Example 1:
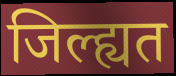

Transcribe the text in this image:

जिल्ह्यत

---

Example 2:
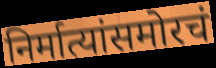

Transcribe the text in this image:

निर्मात्यांसमोरचं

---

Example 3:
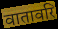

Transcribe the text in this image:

वातावरि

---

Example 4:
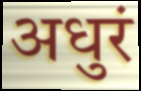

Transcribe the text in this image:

अधुरं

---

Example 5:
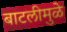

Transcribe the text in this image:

बाटलीमुळे